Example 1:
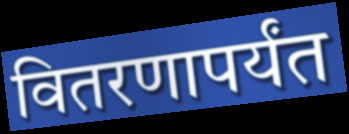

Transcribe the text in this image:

वितरणापर्यंत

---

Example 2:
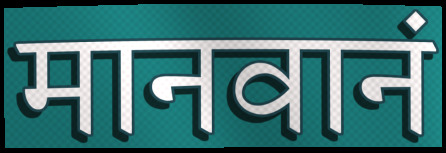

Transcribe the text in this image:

मानवानं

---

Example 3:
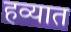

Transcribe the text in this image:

हव्यात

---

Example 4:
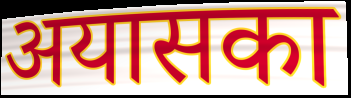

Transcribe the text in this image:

अयासका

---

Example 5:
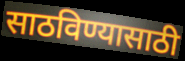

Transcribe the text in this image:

साठविण्यासाठी